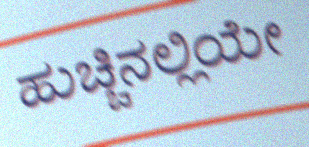
ಹುಚ್ಚಿನಲ್ಲಿಯೇ